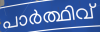
പാർത്ഥിവ്